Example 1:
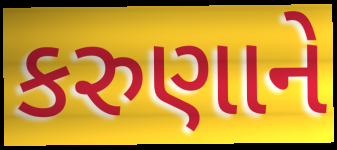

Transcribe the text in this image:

કરુણાને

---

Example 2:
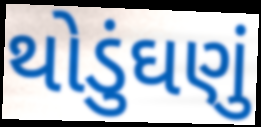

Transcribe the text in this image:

થોડુંઘણું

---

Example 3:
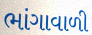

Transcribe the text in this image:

ભાંગાવાળી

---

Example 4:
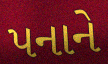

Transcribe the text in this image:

પનાને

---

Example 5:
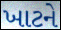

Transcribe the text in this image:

ખાટને